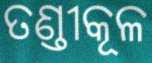
ତଣ୍ଡୀକୂଳ